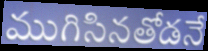
ముగిసినతోడనే